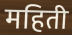
महिती